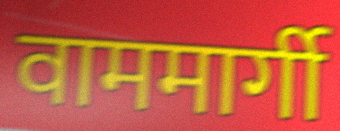
वाममार्गी